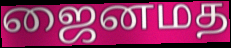
ஜைனமத